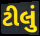
ટીલું